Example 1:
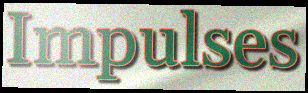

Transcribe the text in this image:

Impulses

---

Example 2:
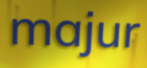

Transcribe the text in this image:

majur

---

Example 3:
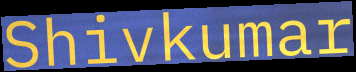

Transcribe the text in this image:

Shivkumar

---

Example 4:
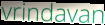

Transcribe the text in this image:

vrindavan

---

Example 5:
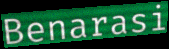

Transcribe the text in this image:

Benarasi